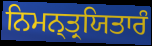
ਨਿਮਨ੍ਤ੍ਰਯਿਤਾਰੰ